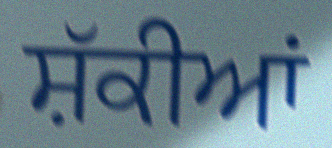
ਸ਼ੱਕੀਆਂ